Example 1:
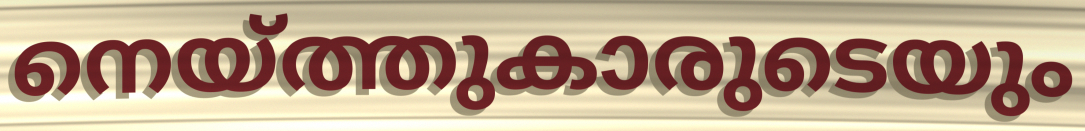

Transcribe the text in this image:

നെയ്ത്തുകാരുടെയും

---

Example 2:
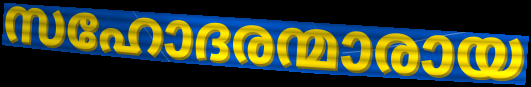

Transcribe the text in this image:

സഹോദരന്മാരായ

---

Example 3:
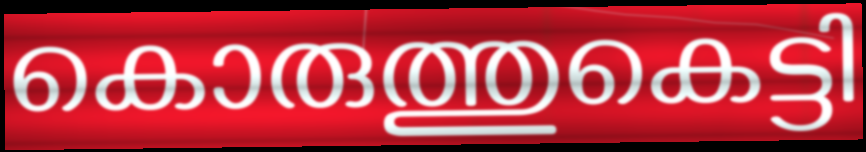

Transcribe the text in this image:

കൊരുത്തുകെട്ടി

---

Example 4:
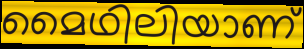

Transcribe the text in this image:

മൈഥിലിയാണ്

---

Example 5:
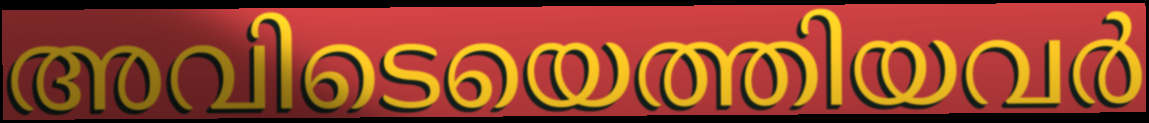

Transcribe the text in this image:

അവിടെയെത്തിയവർ